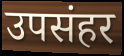
उपसंहर